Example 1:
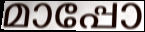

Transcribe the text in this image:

മാപ്പോ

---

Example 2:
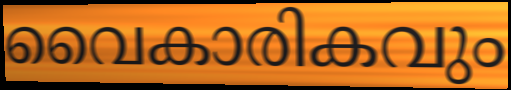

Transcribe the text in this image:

വൈകാരികവും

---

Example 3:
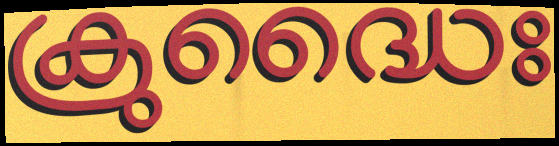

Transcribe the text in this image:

ക്രുദ്ധൈഃ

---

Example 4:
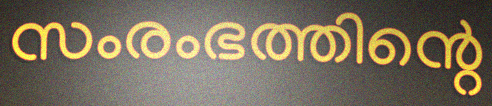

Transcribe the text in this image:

സംരംഭത്തിന്റെ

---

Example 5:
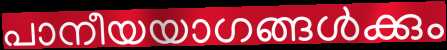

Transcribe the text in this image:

പാനീയയാഗങ്ങൾക്കും